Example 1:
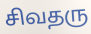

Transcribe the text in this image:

சிவதரு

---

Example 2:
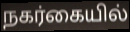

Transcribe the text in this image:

நகர்கையில்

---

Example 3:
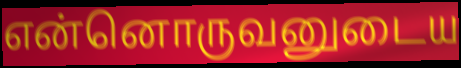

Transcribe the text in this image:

என்னொருவனுடைய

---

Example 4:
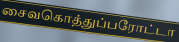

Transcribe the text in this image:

சைவகொத்துப்பரோட்டா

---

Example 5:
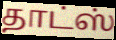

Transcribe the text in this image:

தாட்ஸ்